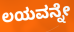
ಲಯವನ್ನೇ